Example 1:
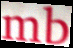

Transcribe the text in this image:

mb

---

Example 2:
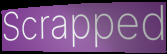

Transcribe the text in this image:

Scrapped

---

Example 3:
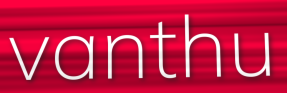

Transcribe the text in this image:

vanthu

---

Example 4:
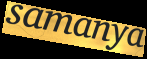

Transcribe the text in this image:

samanya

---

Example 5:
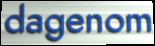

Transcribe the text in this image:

dagenom